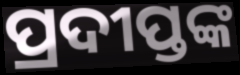
ପ୍ରଦୀପ୍ତଙ୍କ